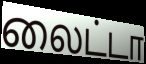
லைட்டா